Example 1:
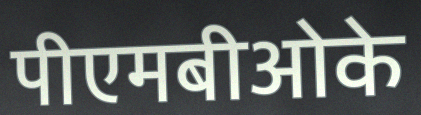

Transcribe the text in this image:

पीएमबीओके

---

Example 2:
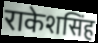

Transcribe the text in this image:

राकेशसिंह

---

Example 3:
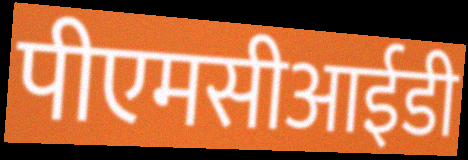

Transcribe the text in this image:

पीएमसीआईडी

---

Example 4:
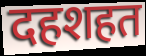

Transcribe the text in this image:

दहशहत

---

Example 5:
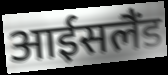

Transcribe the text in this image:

आईसलैंड